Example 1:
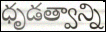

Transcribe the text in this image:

ధృడత్వాన్ని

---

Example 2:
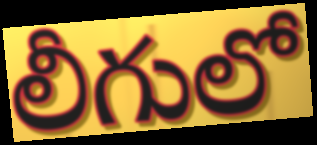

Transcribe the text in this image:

లీగులో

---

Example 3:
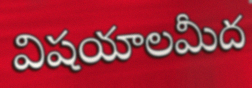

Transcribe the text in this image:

విషయాలమీద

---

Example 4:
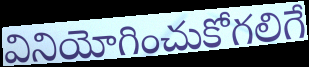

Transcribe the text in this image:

వినియోగించుకోగలిగే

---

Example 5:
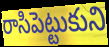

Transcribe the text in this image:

రాసిపెట్టుకుని